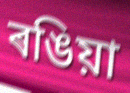
ৰঙিয়া